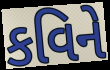
કવિને